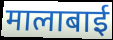
मालाबाई